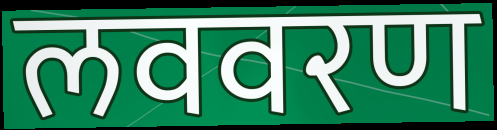
लववरण